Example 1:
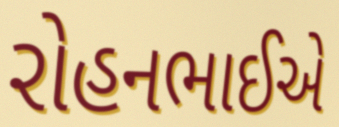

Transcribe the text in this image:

રોહનભાઈએ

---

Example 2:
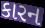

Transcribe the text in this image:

કારન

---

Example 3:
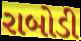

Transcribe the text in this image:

રાબોડી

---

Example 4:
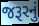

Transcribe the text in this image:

જરૂરનું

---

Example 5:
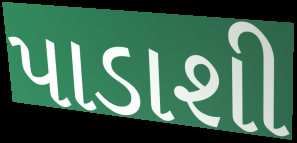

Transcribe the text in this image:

પાડાશી